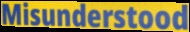
Misunderstood